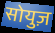
सोयुज़